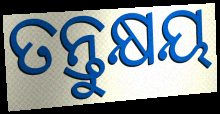
ତନ୍ତୁକ୍ଷୟ